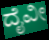
ದೈವೀ